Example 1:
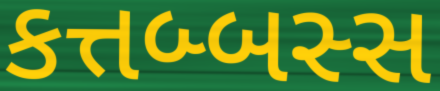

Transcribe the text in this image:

કત્તબ્બસ્સ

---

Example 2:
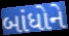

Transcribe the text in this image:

બાંધોને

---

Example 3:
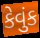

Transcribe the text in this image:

કેવુંક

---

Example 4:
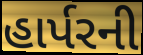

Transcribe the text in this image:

હાર્પરની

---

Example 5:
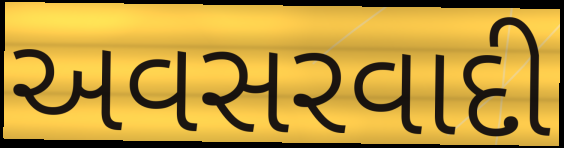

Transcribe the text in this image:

અવસરવાદી